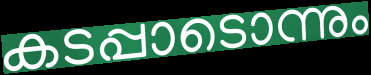
കടപ്പാടൊന്നും